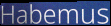
Habemus